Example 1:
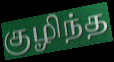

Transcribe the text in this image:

குழிந்த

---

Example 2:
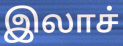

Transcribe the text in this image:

இலாச்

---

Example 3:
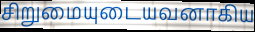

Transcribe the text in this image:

சிறுமையுடையவனாகிய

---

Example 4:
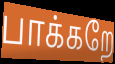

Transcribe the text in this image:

பாக்கறே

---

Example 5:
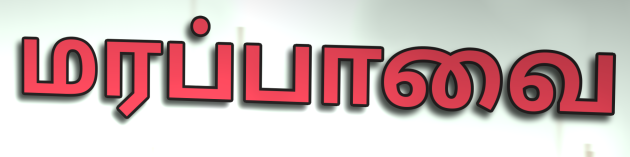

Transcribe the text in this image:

மரப்பாவை